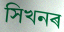
সিখনৰ